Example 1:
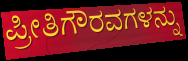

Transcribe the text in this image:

ಪ್ರೀತಿಗೌರವಗಳನ್ನು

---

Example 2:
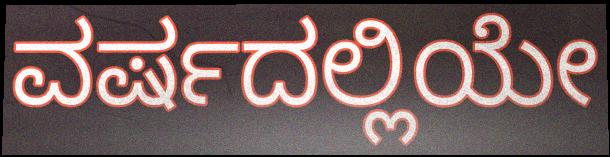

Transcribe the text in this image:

ವರ್ಷದಲ್ಲಿಯೇ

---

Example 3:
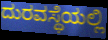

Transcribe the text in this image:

ದುರವಸ್ಥೆಯಲ್ಲಿ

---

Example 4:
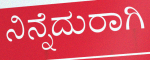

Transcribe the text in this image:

ನಿನ್ನೆದುರಾಗಿ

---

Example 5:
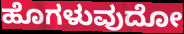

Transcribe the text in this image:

ಹೊಗಳುವುದೋ